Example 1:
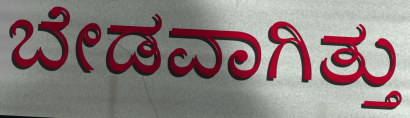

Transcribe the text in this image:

ಬೇಡವಾಗಿತ್ತು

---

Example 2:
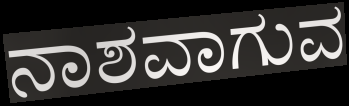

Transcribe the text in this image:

ನಾಶವಾಗುವ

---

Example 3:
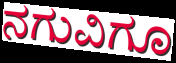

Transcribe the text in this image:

ನಗುವಿಗೂ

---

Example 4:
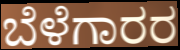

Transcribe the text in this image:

ಬೆಳೆಗಾರರ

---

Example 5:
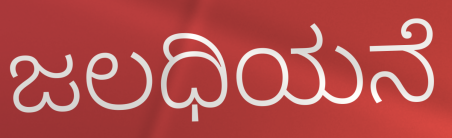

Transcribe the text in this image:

ಜಲಧಿಯನೆ